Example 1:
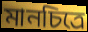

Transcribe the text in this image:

মানচিত্রে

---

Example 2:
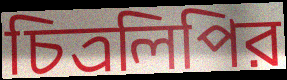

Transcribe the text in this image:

চিত্রলিপির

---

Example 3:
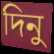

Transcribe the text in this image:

দিনু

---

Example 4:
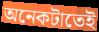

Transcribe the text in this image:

অনেকটাতেই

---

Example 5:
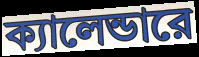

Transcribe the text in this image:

ক্যালেন্ডারে